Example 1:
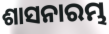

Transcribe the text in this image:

ଶାସନାରମ୍ଭ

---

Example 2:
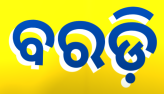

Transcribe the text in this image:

ବରଡ଼ି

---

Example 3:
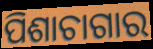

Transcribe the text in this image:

ପିଶାଚାଗାର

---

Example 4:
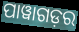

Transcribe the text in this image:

ପାୱାଗଡ଼ର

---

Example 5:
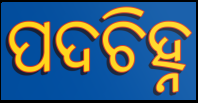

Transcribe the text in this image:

ପଦଚିହ୍ନ